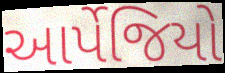
આર્પેજિયો